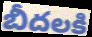
బీదలకి